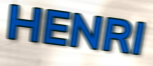
HENRI